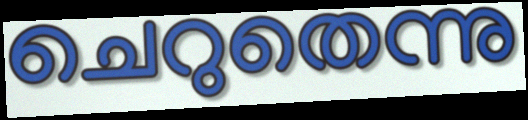
ചെറുതെന്നു